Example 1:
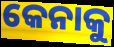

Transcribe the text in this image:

କେନାକୁ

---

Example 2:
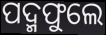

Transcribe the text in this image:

ପଦ୍ମଫୁଲେ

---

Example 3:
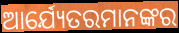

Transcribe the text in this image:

ଆର୍ଯ୍ୟେତରମାନଙ୍କର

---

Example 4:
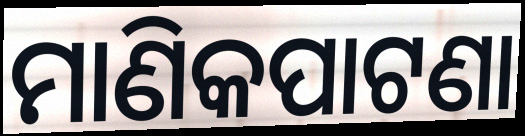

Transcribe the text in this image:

ମାଣିକପାଟଣା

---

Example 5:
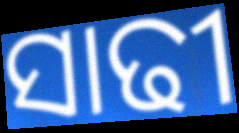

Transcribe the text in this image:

ସାଢୀ